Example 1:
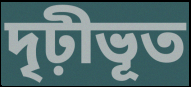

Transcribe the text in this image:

দৃঢ়ীভূত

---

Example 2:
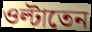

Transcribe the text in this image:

ওল্টাতেন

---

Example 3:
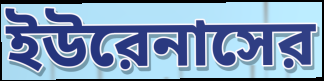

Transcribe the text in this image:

ইউরেনাসের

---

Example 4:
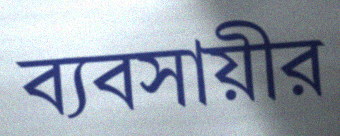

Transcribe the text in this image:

ব্যবসায়ীর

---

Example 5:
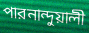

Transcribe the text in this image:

পারনান্দুয়ালী